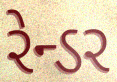
રેન્ડર